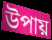
উপায়